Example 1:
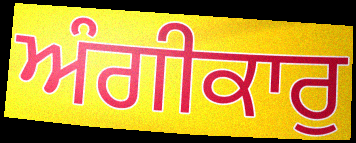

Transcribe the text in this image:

ਅੰਗੀਕਾਰੁ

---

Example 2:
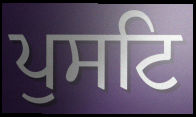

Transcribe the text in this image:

ਪੁਸਟਿ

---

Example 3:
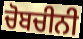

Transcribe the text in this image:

ਚੋਬਚੀਨੀ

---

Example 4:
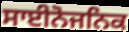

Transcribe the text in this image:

ਸਾਈਨੋਜਨਿਕ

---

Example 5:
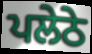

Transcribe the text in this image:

ਪਲੇਠੇ